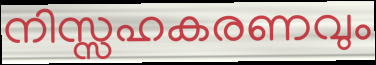
നിസ്സഹകരണവും